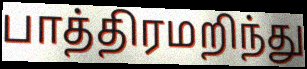
பாத்திரமறிந்து